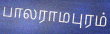
பாலராமபுரம்